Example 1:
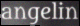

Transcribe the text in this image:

angelin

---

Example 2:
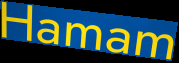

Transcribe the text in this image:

Hamam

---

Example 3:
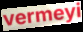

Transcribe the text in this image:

vermeyi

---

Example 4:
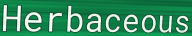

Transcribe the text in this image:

Herbaceous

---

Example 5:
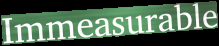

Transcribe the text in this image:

Immeasurable